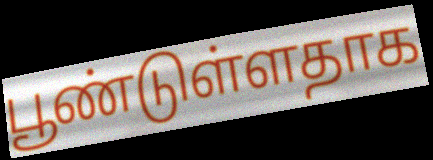
பூண்டுள்ளதாக